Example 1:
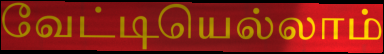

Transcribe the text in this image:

வேட்டியெல்லாம்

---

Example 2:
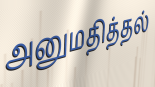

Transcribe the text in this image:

அனுமதித்தல்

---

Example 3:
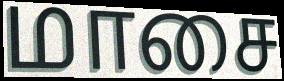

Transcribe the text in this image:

மாசை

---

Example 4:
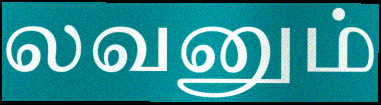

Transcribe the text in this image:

லவனும்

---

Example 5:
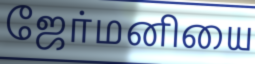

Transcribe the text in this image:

ஜேர்மனியை